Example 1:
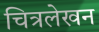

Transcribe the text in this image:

चित्रलेखन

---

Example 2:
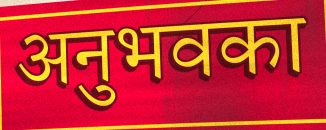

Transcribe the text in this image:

अनुभवका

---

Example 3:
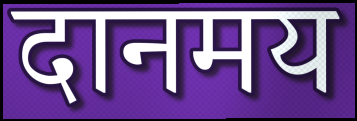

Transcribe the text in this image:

दानमय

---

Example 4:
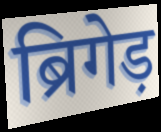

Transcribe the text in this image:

ब्रिगेड़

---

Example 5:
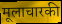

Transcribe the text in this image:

मूलाचारकी